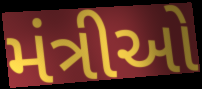
મંત્રીઓ